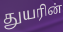
துயரின்